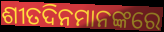
ଶୀତଦିନମାନଙ୍କରେ